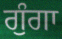
ਗੁੰਗਾ